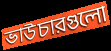
ভাউচারগুলো